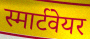
स्मार्टवेयर